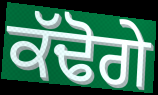
ਕੱਢੋਗੇ